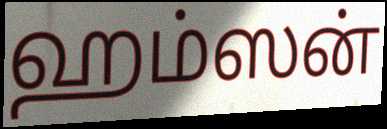
ஹம்ஸன்